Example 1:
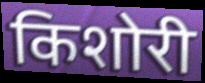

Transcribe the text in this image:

किशोरी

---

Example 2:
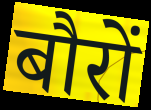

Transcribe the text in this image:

बौरों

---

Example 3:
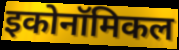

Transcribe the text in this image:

इकोनॉमिकल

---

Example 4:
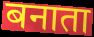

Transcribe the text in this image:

बनाता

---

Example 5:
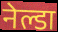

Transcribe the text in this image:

नेल्डा